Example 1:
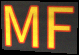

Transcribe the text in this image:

MF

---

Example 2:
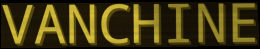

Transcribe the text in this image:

VANCHINE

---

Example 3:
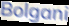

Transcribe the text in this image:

Bolgani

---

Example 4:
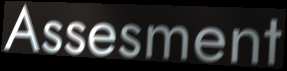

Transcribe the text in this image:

Assesment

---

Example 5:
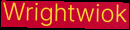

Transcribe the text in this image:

Wrightwiok